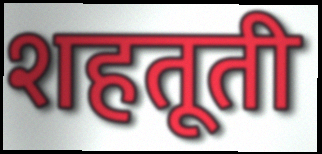
शहतूती